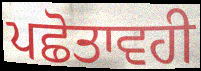
ਪਛੋਤਾਵਹੀ